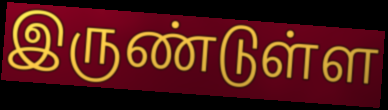
இருண்டுள்ள